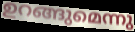
ഉറങ്ങുമെന്നു